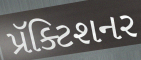
પ્રૅક્ટિશનર